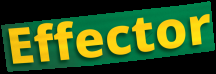
Effector